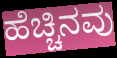
ಹೆಚ್ಚಿನವು